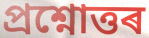
প্ৰশ্নোত্তৰ